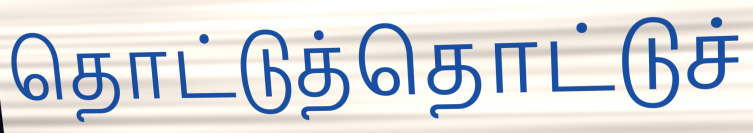
தொட்டுத்தொட்டுச்